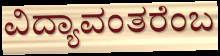
ವಿದ್ಯಾವಂತರೆಂಬ